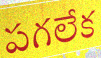
పగలేక